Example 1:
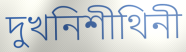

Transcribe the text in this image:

দুখনিশীথিনী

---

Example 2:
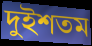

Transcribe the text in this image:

দুইশতম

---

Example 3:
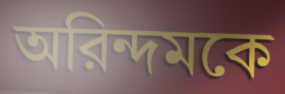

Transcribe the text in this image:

অরিন্দমকে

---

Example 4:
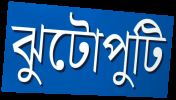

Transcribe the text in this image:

ঝুটোপুটি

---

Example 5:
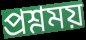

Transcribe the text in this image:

প্রশ্নময়